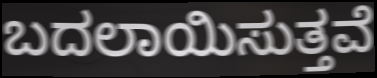
ಬದಲಾಯಿಸುತ್ತವೆ